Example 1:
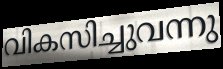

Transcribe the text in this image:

വികസിച്ചുവന്നു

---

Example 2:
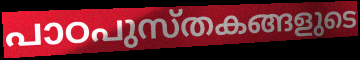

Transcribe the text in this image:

പാഠപുസ്തകങ്ങളുടെ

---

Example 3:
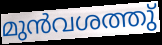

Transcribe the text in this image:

മുൻവശത്തു്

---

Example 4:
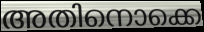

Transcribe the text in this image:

അതിനൊക്കെ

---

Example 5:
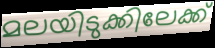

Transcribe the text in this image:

മലയിടുക്കിലേക്ക്